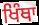
ਖਿੰਥਾ